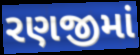
રણજીમાં